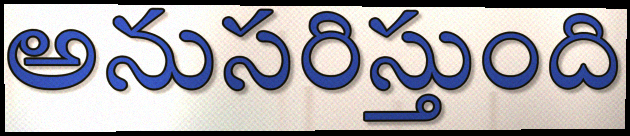
అనుసరిస్తుంది